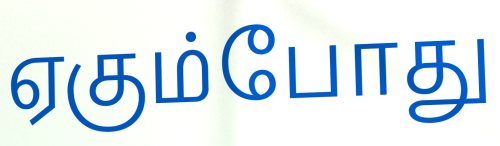
ஏகும்போது